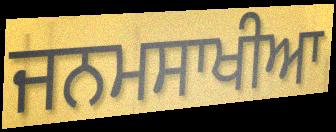
ਜਨਮਸਾਖੀਆ